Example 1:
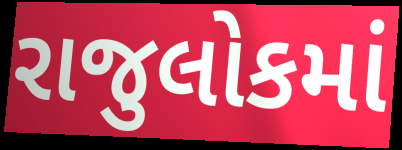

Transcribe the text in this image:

રાજુલોકમાં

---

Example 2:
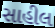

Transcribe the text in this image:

સાહીલ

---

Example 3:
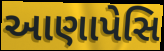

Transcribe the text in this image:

આણાપેસિ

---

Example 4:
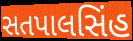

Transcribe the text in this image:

સતપાલસિંહ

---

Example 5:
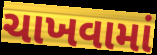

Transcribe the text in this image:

ચાખવામાં